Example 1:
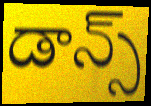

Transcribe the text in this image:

డాన్స్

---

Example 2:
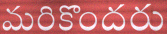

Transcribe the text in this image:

మరికొందరు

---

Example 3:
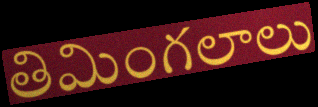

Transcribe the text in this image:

తిమింగలాలు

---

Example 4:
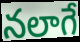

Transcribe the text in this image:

నలాగే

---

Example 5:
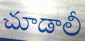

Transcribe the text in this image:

చూడాలీ